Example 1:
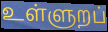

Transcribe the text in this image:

உள்ளுறப்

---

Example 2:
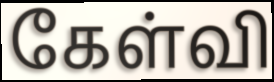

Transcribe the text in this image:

கேள்வி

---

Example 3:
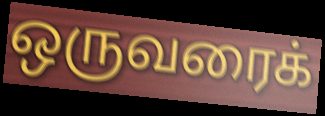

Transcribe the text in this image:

ஒருவரைக்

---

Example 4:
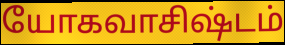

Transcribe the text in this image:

யோகவாசிஷ்டம்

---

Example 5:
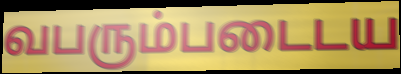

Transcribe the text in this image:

வபரும்படைடய